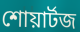
শোয়ার্টজ